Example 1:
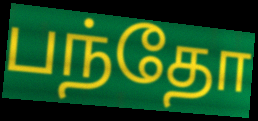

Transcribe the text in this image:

பந்தோ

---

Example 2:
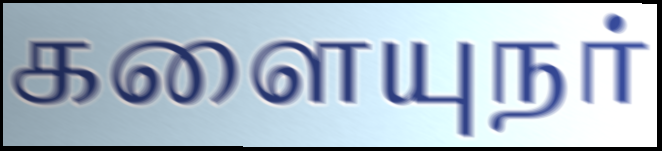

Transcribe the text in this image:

களையுநர்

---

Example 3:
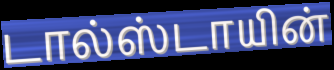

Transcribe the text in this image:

டால்ஸ்டாயின்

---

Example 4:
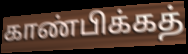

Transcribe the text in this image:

காண்பிக்கத்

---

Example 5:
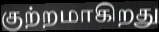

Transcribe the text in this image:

குற்றமாகிறது